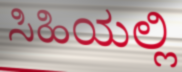
ಸಿಹಿಯಲ್ಲಿ